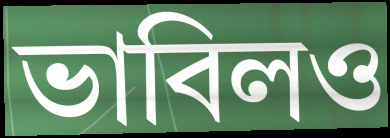
ভাবিলও